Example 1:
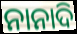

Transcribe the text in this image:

ନାନାଦି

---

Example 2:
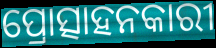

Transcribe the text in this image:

ପ୍ରୋତ୍ସାହନକାରୀ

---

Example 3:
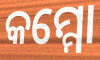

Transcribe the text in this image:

କମ୍ମୋ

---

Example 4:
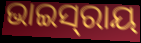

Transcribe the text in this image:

ଭାଇସ୍‍ରାୟ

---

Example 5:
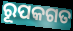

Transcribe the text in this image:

ରୂପକଗତ